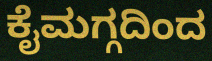
ಕೈಮಗ್ಗದಿಂದ